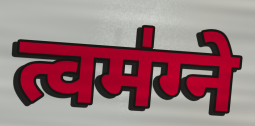
त्वम॑ग्ने